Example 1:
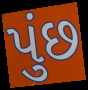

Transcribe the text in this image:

પુંછ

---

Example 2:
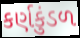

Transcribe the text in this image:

કર્ણકુંડળ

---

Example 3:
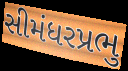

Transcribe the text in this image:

સીમંધરપ્રભુ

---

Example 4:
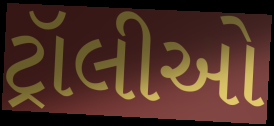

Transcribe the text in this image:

ટ્રૉલીઓ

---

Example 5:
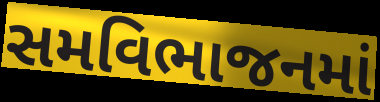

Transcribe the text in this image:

સમવિભાજનમાં